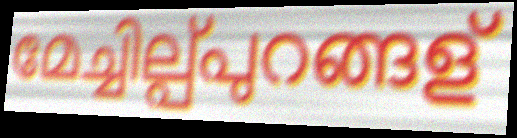
മേച്ചില്പ്പുറങ്ങള്